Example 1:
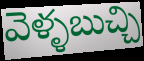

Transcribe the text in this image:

వెళ్ళబుచ్చి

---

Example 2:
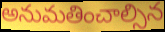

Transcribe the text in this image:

అనుమతించాల్సిన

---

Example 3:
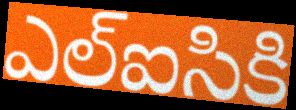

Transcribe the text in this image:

ఎల్ఐసికి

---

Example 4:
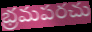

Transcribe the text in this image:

భ్రమపరచు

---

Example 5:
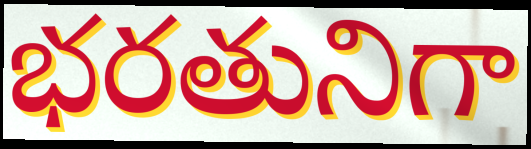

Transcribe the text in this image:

భరతునిగా